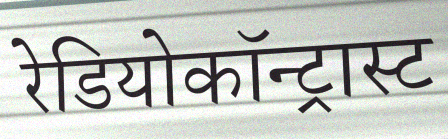
रेडियोकॉन्ट्रास्ट